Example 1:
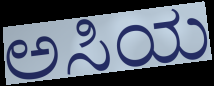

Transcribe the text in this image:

ಅಸಿಯ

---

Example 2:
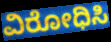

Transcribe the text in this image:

ವಿರೋಧಿಸಿ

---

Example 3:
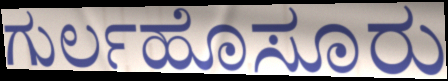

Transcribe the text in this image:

ಗುರ್ಲಹೊಸೂರು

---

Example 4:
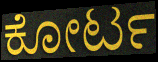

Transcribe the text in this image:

ಕೋರ್ಟ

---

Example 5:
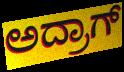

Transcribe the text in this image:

ಅದ್ರಾಗ್